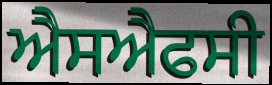
ਐਸਐਫਸੀ